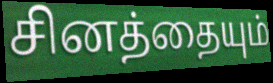
சினத்தையும்